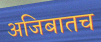
अजिबातच